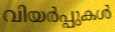
വിയർപ്പുകൾ